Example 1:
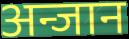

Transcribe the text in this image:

अन्जान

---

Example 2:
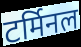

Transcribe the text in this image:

टर्मिनल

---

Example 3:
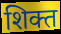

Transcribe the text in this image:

शिक्त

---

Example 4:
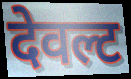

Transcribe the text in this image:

देवल्ट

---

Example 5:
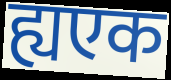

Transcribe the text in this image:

ह्यएक